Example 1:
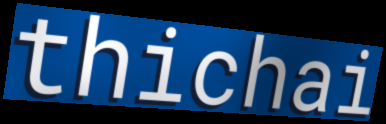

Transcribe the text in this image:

thichai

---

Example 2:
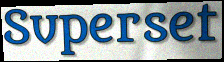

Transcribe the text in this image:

Superset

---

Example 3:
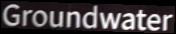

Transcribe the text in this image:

Groundwater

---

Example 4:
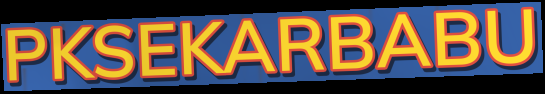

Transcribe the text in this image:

PKSEKARBABU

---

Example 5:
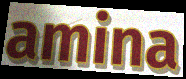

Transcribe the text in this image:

amina